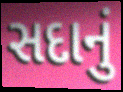
સદાનું